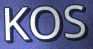
KOS